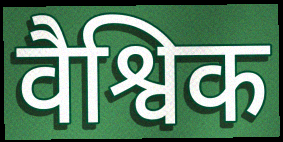
वैश्विक